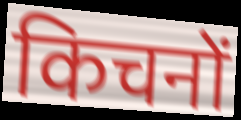
किचनों